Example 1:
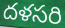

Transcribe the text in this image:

దళసరి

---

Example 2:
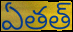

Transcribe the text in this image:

ఏతత్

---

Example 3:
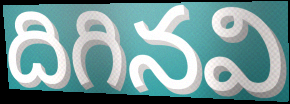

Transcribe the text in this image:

దిగినవి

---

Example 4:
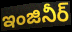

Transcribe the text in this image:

ఇంజినీర్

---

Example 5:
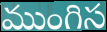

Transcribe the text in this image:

ముంగిస